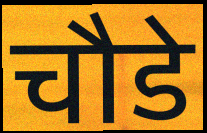
चौडे